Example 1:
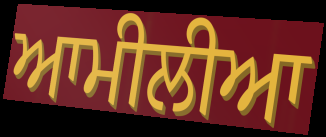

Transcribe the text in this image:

ਆਮੀਲੀਆ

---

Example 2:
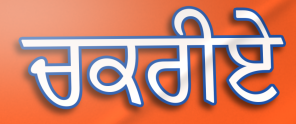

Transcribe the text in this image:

ਚਕਰੀਏ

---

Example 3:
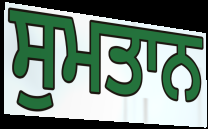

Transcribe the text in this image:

ਸੁਮਤਾਨ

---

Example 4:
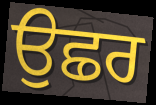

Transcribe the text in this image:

ਉਛਰ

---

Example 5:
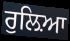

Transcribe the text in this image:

ਰੁਲ਼ਿਆ